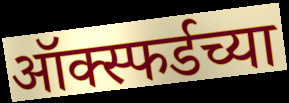
ऑक्स्फर्डच्या